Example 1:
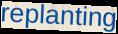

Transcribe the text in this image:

replanting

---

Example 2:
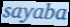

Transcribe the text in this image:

sayaba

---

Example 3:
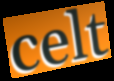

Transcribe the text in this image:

celt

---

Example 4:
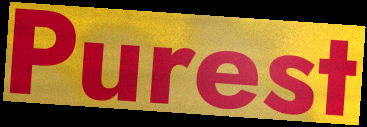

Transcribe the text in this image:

Purest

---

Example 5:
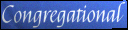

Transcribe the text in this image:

Congregational